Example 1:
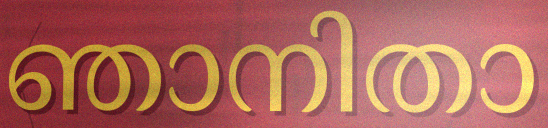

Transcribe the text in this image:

ഞാനിതാ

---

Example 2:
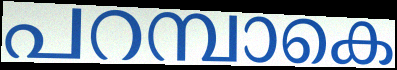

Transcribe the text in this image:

പറമ്പാകെ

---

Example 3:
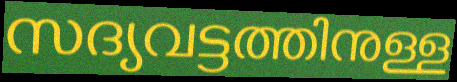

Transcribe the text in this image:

സദ്യവട്ടത്തിനുള്ള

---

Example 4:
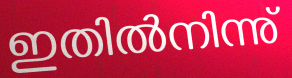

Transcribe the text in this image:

ഇതിൽനിന്നു്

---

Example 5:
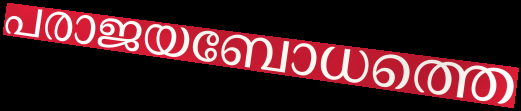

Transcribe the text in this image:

പരാജയബോധത്തെ